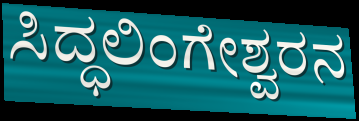
ಸಿದ್ಧಲಿಂಗೇಶ್ವರನ